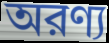
অরণ্য